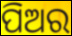
ପିଅର